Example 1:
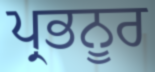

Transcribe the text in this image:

ਪ੍ਰਭਨੂਰ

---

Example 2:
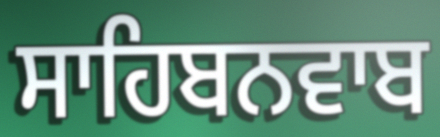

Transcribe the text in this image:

ਸਾਹਿਬਨਵਾਬ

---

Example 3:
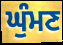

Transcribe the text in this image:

ਘੁੰਮਣ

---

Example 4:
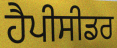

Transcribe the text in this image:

ਹੈਪੀਸੀਡਰ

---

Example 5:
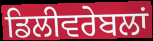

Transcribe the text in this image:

ਡਿਲੀਵਰੇਬਲਾਂ